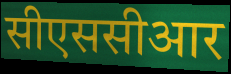
सीएससीआर